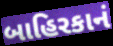
બાહિરકાનં